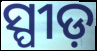
ସ୍ପୀଡ଼